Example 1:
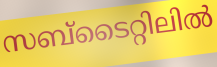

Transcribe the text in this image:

സബ്ടൈറ്റിലിൽ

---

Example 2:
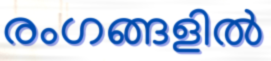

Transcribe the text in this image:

രംഗങ്ങളിൽ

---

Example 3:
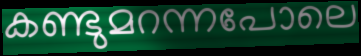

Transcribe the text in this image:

കണ്ടുമറന്നപോലെ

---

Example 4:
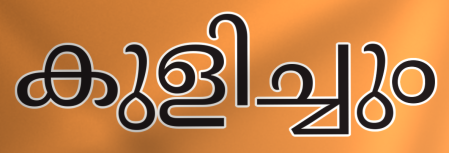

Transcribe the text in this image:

കുളിച്ചും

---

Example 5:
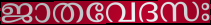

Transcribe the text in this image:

ജാതവേദസഃ